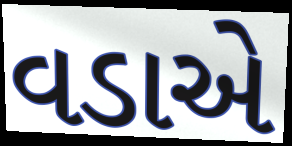
વડાએ